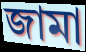
জামা